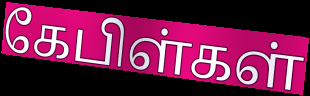
கேபிள்கள்